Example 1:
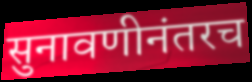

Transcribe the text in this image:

सुनावणीनंतरच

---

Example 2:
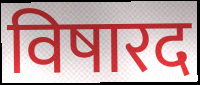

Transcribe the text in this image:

विषारद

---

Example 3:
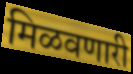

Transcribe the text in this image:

मिळवणारी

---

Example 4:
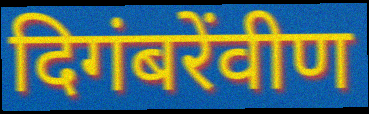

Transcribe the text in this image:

दिगंबरेंवीण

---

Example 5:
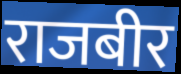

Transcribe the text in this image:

राजबीर